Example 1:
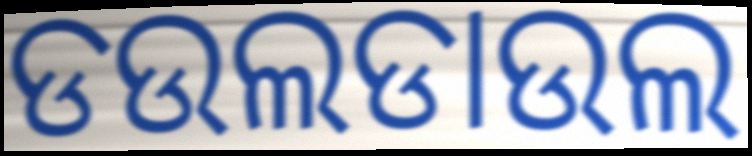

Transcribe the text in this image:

ଡଉଲଡାଉଲ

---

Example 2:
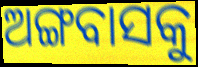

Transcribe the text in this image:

ଅଙ୍ଗବାସକୁ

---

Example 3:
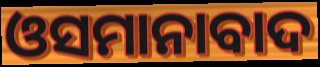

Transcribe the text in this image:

ଓସମାନାବାଦ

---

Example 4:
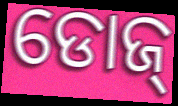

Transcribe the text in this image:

ଡୋଜ୍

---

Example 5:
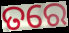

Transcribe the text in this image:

ତରେ